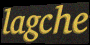
lagche